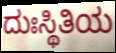
ದುಃಸ್ಥಿತಿಯ